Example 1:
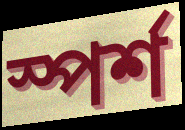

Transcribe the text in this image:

স্পৰ্শ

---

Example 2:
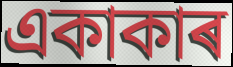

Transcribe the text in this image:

একাকাৰ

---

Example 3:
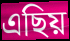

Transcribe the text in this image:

এছিয়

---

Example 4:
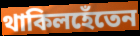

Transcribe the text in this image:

থাকিলহেঁতেন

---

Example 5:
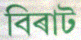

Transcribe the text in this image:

বিৰাট